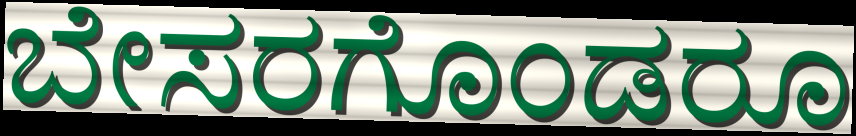
ಬೇಸರಗೊಂಡರೂ